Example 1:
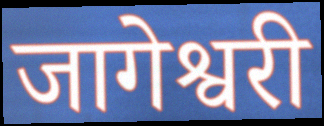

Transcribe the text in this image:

जागेश्वरी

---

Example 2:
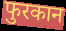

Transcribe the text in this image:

फुरकान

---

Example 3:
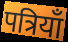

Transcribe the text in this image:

पत्रियाँ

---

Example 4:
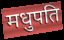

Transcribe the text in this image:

मधुपति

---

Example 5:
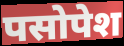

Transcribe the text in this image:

पसोपेश